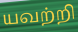
யவற்றி